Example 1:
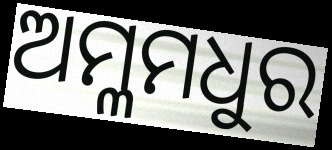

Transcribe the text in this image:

ଅମ୍ଳମଧୁର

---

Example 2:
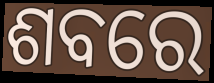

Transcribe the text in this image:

ଶବରେ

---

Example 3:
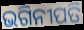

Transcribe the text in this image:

ଭଗିନୀପତି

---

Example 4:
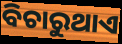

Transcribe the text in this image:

ବିଚାରୁଥାଏ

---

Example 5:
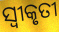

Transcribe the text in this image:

ସ୍ୱୀକୃତୀ